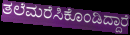
ತಲೆಮರೆಸಿಕೊಂಡಿದ್ದಾರೆ